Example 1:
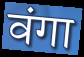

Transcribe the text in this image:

वंगा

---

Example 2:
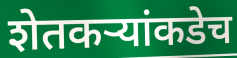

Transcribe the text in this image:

शेतकऱ्यांकडेच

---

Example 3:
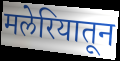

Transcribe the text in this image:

मलेरियातून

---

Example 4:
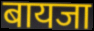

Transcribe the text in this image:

बायजा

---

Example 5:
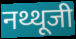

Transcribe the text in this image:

नथ्थूजी